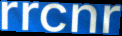
rrcnr